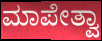
ಮಾಪೇತ್ವಾ